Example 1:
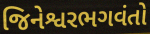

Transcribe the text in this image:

જિનેશ્વરભગવંતો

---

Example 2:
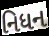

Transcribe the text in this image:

નિધન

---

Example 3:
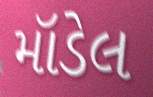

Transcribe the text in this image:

મૉડેલ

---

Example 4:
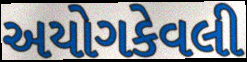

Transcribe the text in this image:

અયોગકેવલી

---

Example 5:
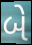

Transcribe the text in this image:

બે